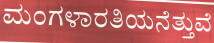
ಮಂಗಳಾರತಿಯನೆತ್ತುವೆ